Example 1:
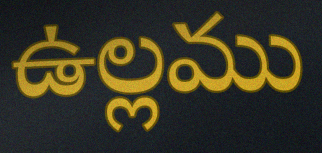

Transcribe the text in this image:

ఉల్లము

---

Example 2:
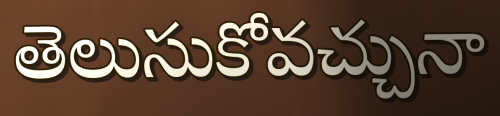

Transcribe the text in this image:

తెలుసుకోవచ్చునా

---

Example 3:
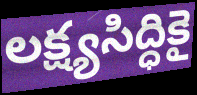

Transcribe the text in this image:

లక్ష్యసిద్ధికై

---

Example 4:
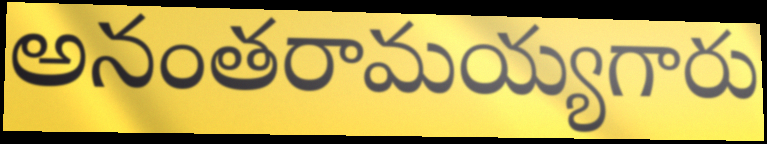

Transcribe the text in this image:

అనంతరామయ్యగారు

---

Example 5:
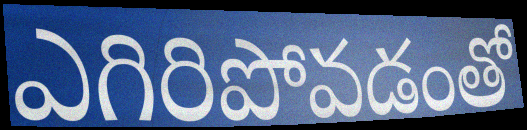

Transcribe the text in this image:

ఎగిరిపోవడంతో